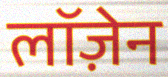
लॉज़ेन